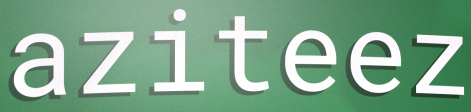
aziteez